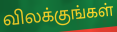
விலக்குங்கள்